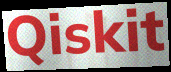
Qiskit